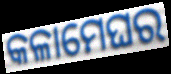
କଳାମେଘର